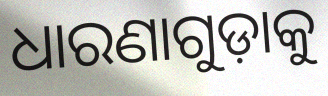
ଧାରଣାଗୁଡ଼ାକୁ